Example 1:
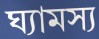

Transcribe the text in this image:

ঘ্যামস্য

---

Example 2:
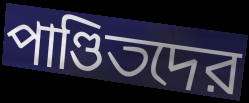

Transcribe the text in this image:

পাণ্ডিতদের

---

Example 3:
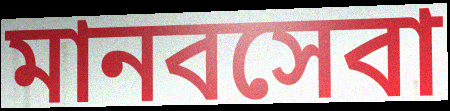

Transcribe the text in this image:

মানবসেবা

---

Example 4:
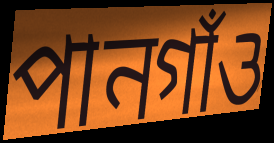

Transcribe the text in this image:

পানগাঁও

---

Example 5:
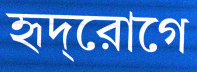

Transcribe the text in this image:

হৃদ্‌রোগে